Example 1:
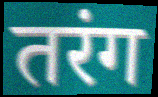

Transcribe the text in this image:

तरंग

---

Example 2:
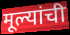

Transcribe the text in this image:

मूल्यांची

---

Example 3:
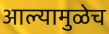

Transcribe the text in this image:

आल्यामुळेच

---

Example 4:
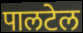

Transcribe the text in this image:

पालटेल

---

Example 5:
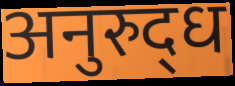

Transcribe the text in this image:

अनुरुद्ध